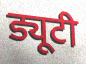
ड्यूटी